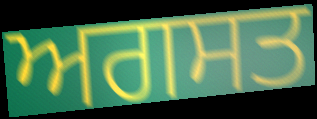
ਅਗਸਤ